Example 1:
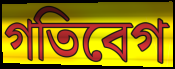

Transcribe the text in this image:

গতিবেগ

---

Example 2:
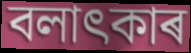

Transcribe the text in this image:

বলাৎকাৰ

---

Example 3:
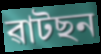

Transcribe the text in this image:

ৱাটছন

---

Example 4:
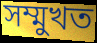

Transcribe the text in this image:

সম্মুখত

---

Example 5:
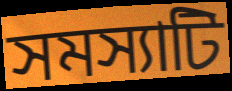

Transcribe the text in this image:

সমস্যাটি